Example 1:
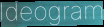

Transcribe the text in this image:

Ideogram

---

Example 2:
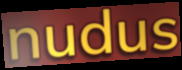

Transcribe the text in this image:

nudus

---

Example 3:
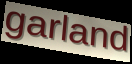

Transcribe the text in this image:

garland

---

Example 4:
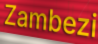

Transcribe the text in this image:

Zambezi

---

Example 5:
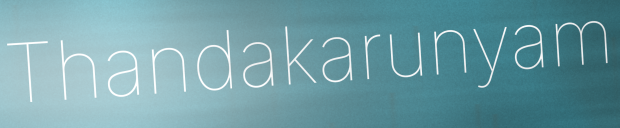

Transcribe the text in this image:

Thandakarunyam